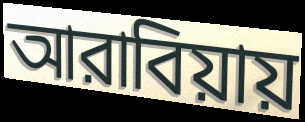
আরাবিয়ায়